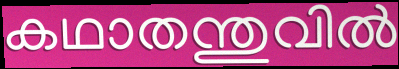
കഥാതന്തുവിൽ